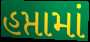
હપ્તામાં